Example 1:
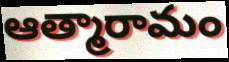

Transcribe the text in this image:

ఆత్మారామం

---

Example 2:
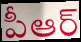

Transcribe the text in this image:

పీఆర్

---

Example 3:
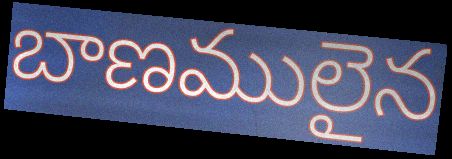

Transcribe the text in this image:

బాణములైన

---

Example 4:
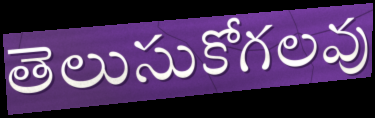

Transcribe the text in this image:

తెలుసుకోగలవు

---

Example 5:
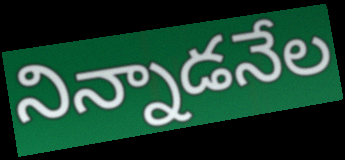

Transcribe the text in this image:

నిన్నాడనేల